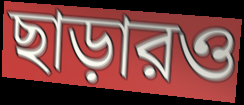
ছাড়ারও